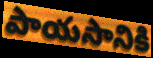
పాయసానికి